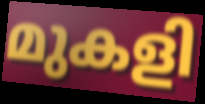
മുകളി